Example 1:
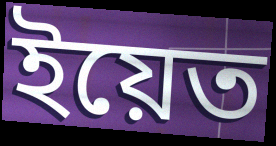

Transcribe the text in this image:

ইয়েত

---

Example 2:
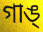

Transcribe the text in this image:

গাঙ্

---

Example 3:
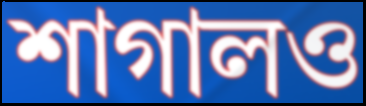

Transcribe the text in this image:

শাগালও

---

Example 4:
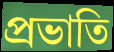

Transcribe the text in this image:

প্রভাতি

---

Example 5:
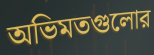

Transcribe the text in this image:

অভিমতগুলোর